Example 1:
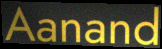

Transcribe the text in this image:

Aanand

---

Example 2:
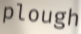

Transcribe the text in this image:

plough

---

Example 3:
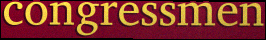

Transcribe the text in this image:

congressmen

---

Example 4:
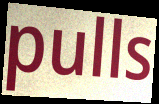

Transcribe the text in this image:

pulls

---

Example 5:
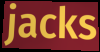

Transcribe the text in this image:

jacks